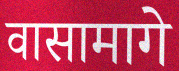
वासामागे